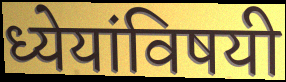
ध्येयांविषयी